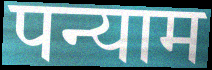
पन्याम